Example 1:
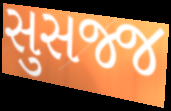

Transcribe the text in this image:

સુસજ્જ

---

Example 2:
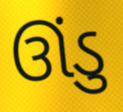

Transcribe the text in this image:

ઊંડુ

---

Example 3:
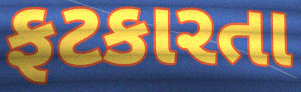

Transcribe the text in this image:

ફટકારતા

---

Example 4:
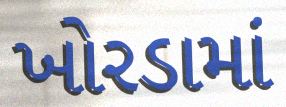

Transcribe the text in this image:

ખોરડામાં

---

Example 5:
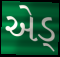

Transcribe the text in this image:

એડ્